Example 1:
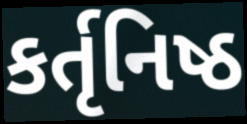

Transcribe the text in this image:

કર્તૃનિષ્ઠ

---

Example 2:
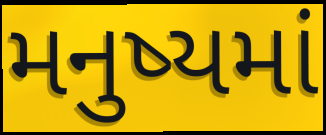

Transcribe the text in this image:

મનુષ્યમાં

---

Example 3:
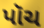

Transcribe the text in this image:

પૉચ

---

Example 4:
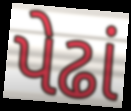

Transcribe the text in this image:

પેઢાં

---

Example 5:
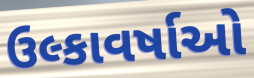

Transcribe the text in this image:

ઉલ્કાવર્ષાઓ